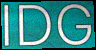
IDG